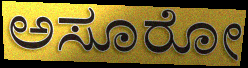
ಅಸೂರೋ